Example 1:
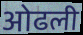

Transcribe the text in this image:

ओढली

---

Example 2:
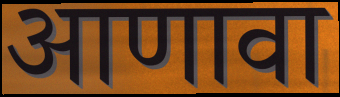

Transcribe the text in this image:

आणावा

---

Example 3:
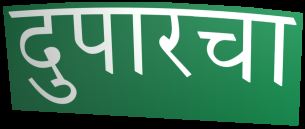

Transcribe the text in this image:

दुपारचा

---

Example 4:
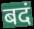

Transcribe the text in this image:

बदं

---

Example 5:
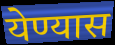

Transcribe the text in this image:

येण्यास